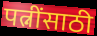
पत्नींसाठी